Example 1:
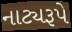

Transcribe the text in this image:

નાટ્યરૂપે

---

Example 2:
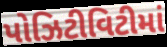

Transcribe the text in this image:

પોઝિટીવિટીમાં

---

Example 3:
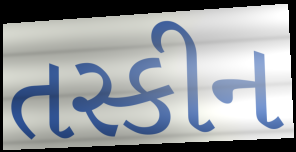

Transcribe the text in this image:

તસ્કીન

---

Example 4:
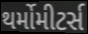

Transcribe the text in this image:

થર્મોમીટર્સ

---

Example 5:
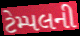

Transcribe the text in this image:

ટેમ્પલની